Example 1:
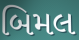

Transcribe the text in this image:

બિમલ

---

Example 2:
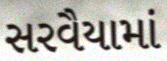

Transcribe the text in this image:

સરવૈયામાં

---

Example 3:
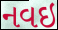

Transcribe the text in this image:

નવઇ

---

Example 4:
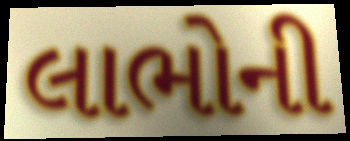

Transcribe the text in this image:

લાભોની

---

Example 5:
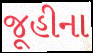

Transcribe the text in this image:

જૂહીના